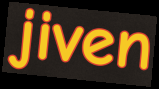
jiven